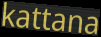
kattana